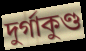
দুর্গাকুণ্ড